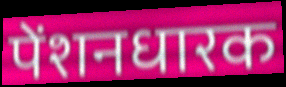
पेंशनधारक